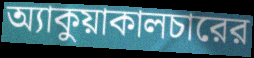
অ্যাকুয়াকালচারের